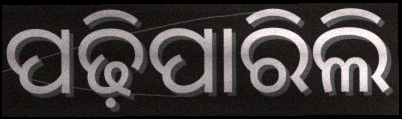
ପଢ଼ିପାରିଲି